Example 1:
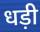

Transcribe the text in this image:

धड़ी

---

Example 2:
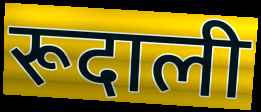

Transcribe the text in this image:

रूदाली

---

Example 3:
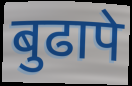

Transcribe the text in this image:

बुढापे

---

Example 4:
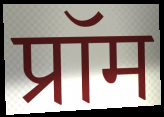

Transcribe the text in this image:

प्रॉम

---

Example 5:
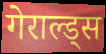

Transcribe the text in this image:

गेराल्ड्स